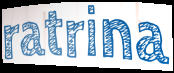
ratrina